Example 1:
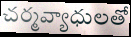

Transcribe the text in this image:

చర్మవ్యాధులతో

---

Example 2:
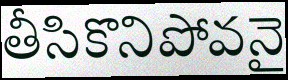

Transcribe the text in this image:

తీసికొనిపోవనై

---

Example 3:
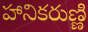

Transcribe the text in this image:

హానికరుణ్ణి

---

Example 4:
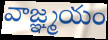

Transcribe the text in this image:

వాజ్ఞ్మయం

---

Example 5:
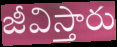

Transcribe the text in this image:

జీవిస్తారు